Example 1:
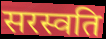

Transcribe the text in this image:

सरस्वति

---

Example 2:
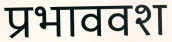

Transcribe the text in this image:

प्रभाववश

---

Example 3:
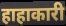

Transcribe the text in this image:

हाहाकारी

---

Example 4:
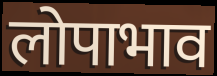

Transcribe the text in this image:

लोपाभाव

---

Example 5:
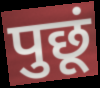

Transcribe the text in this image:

पुछूं